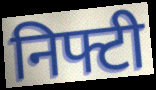
निफ्टी